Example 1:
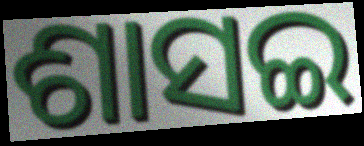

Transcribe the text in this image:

ଶାସଇ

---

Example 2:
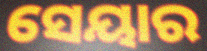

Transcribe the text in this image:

ସେୟାର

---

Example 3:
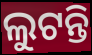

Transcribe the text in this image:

ଲୁଟନ୍ତି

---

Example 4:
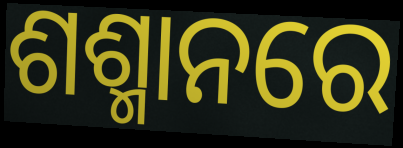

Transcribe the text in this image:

ଶଶ୍ମାନରେ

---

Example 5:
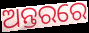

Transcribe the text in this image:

ଅନ୍ତରରେ